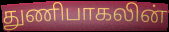
துணிபாகலின்